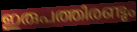
ഇരുപത്തിരണ്ടും